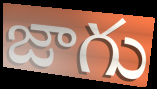
జాగు